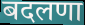
बदलणा